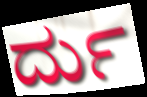
ರ್ದು